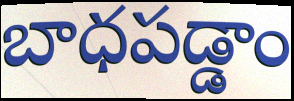
బాధపడ్డాం